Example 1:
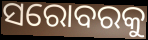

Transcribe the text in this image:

ସରୋବରକୁ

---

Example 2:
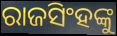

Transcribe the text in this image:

ରାଜସିଂହଙ୍କୁ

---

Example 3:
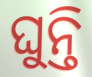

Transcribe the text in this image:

ଘୁନ୍ତି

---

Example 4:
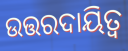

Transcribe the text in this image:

ଉତ୍ତରଦାୟିତ୍ଵ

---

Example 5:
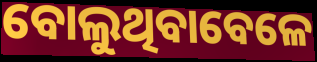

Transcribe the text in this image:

ବୋଲୁଥିବାବେଳେ